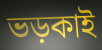
ভড়কাই